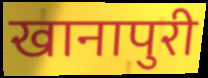
खानापुरी